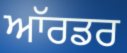
ਆੱਰਡਰ